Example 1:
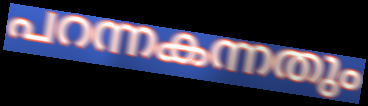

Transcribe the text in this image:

പറന്നകന്നതും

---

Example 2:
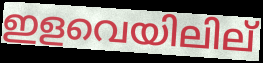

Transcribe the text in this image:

ഇളവെയിലില്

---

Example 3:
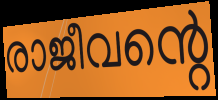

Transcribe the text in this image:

രാജീവന്റെ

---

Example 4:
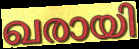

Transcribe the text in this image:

ഖരായി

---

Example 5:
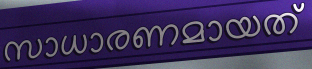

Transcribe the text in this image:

സാധാരണമായത്